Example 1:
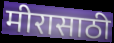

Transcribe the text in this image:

मीरासाठी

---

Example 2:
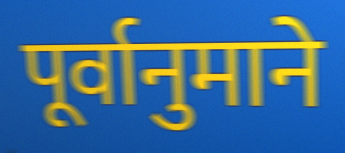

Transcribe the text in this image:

पूर्वानुमाने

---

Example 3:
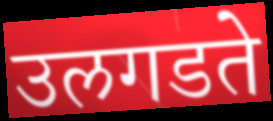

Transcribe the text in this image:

उलगडते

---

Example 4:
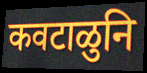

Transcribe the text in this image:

कवटाळुनि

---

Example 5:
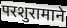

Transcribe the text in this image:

परशुरामाने